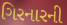
ગિરનારની